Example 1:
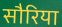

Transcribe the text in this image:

सौरिया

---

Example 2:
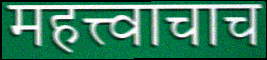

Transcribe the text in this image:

महत्त्वाचाच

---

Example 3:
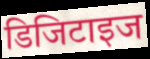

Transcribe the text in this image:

डिजिटाइज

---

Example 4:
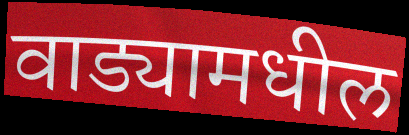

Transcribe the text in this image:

वाड्यामधील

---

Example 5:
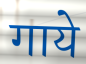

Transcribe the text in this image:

गाये